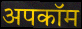
अपकॉम